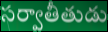
సర్వాతీతుడు